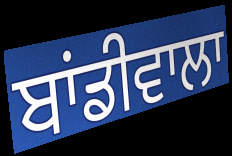
ਬਾਂਡੀਵਾਲਾ